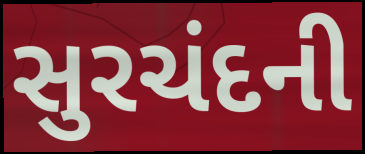
સુરચંદની